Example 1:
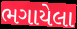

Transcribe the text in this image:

ભગાયેલા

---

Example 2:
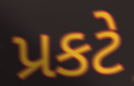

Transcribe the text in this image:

પ્રકટે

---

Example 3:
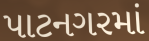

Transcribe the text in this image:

પાટનગરમાં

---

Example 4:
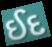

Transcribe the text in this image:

ઈદ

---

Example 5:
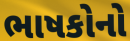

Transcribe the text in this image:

ભાષકોનો